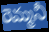
రెమ్మనీ